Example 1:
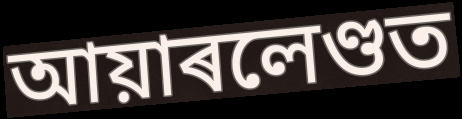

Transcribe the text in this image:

আয়াৰলেণ্ডত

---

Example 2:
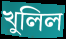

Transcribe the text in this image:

খুলিল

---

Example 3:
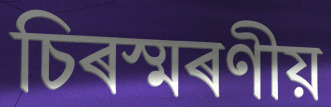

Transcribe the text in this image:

চিৰস্মৰণীয়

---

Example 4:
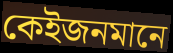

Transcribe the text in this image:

কেইজনমানে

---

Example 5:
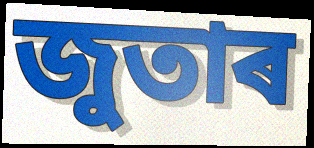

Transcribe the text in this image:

জুতাৰ